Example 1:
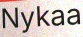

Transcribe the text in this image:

Nykaa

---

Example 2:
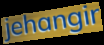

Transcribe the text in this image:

jehangir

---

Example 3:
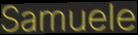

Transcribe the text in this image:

Samuele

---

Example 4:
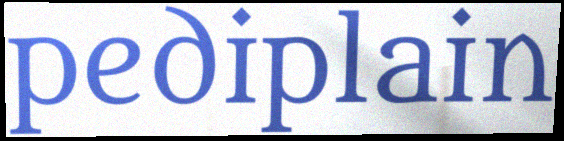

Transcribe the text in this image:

pediplain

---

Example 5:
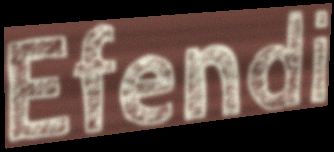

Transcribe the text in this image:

Efendi